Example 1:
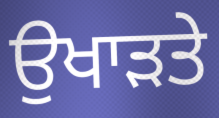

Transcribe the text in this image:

ਉਖਾੜਤੇ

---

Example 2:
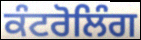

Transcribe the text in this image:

ਕੰਟਰੋਲਿੰਗ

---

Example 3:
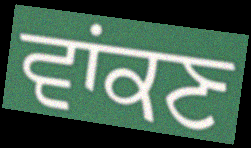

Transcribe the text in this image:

ਵਾਂਕਣ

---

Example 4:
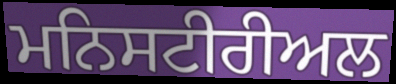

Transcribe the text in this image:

ਮਨਿਸਟੀਰੀਅਲ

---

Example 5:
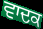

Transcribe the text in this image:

ਵਾਦਕ